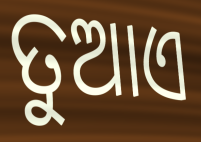
ତୁଆଏ